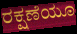
ರಕ್ಷಣೆಯೂ